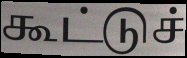
கூட்டுச்